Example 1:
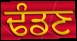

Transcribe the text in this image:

ਢੰਡਣ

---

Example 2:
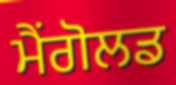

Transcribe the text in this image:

ਮੈਂਗੋਲਡ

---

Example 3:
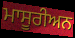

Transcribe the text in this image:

ਮਾਸੂਰੀਅਨ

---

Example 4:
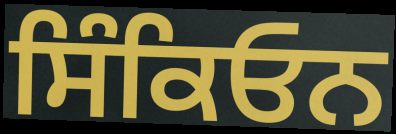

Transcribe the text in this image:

ਸਿੰਕਿਓਨ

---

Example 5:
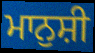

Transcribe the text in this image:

ਮਾਨੁਸ਼ੀ